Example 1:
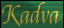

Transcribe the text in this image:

Kadva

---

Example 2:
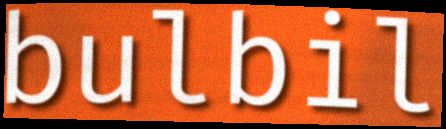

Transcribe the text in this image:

bulbil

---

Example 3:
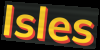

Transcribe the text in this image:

Isles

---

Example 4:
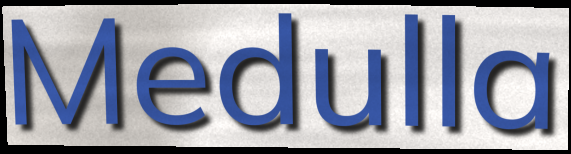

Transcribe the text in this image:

Medulla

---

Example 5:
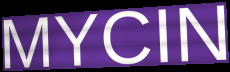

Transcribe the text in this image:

MYCIN